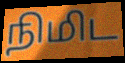
நிமிட